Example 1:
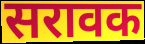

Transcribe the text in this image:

सरावक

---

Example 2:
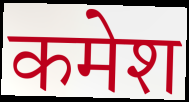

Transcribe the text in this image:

कमेश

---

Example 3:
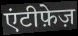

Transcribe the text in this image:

एंटीफ़ेज़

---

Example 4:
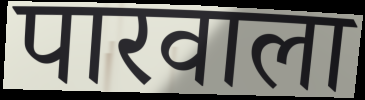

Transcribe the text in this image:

पारवाला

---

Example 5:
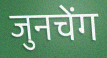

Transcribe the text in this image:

जुनचेंग